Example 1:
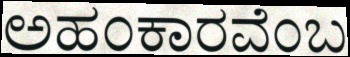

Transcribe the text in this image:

ಅಹಂಕಾರವೆಂಬ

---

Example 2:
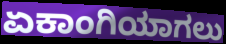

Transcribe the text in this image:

ಏಕಾಂಗಿಯಾಗಲು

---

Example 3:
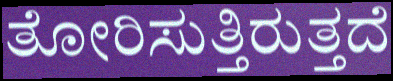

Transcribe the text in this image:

ತೋರಿಸುತ್ತಿರುತ್ತದೆ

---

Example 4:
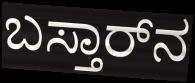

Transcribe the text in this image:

ಬಸ್ತಾರ್‌ನ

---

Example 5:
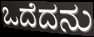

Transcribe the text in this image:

ಒದೆದನು